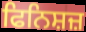
ਫਿਨਿਸ਼ਜ਼